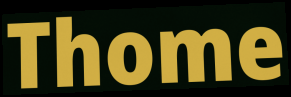
Thome